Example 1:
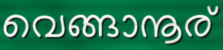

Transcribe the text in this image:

വെങ്ങാനൂര്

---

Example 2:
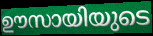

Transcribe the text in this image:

ഊസായിയുടെ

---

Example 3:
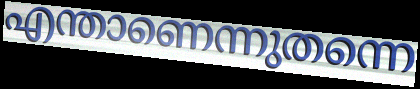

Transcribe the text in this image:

എന്താണെന്നുതന്നെ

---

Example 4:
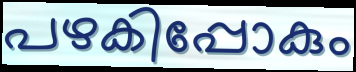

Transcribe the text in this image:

പഴകിപ്പോകും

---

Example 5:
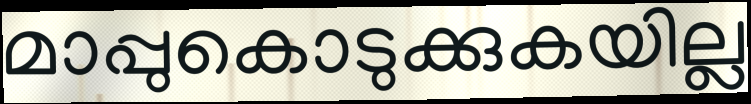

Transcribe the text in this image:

മാപ്പുകൊടുക്കുകയില്ല